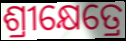
ଶ୍ରୀକ୍ଷେତ୍ରେ